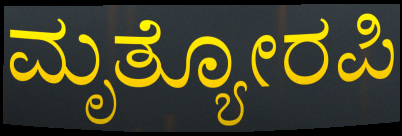
ಮೃತ್ಯೋರಪಿ